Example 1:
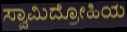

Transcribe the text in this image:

ಸ್ವಾಮಿದ್ರೋಹಿಯ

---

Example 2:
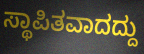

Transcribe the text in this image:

ಸ್ಥಾಪಿತವಾದದ್ದು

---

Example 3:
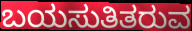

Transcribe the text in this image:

ಬಯಸುತಿತರುವ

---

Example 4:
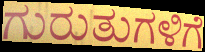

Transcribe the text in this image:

ಗುರುತುಗಳಿಗೆ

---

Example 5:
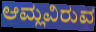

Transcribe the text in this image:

ಆಮ್ಲವಿರುವ